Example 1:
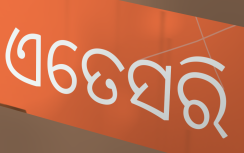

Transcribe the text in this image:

ଏତେସରି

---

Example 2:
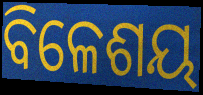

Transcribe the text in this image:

ବିଳେଶୟ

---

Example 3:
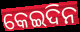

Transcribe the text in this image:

କେଇଦିନ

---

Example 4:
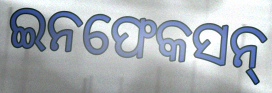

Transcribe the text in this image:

ଇନଫେକସନ୍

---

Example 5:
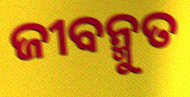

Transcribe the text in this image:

ଜୀବନ୍ମୁତ